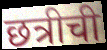
छत्रीची